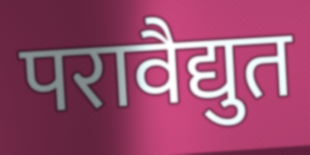
परावैद्युत